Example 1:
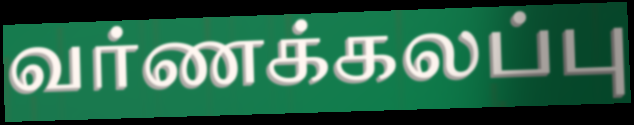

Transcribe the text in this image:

வர்ணக்கலப்பு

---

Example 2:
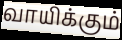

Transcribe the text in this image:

வாயிக்கும்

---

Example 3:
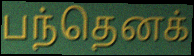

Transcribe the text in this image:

பந்தெனக்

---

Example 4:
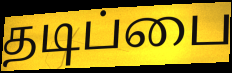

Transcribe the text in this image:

தடிப்பை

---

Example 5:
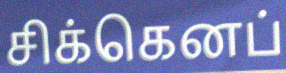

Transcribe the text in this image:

சிக்கெனப்